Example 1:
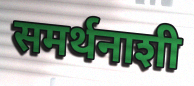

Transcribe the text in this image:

समर्थनाशी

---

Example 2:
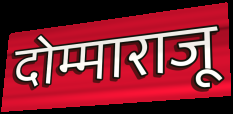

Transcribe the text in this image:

दोम्माराजू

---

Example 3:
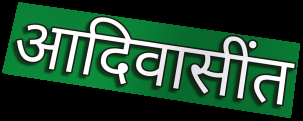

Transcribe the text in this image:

आदिवासींत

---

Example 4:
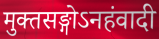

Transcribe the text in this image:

मुक्तसङ्गोऽनहंवादी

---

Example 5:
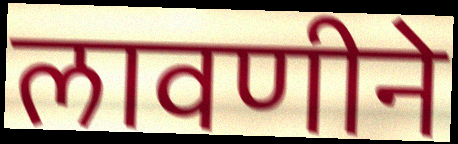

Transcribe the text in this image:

लावणीने